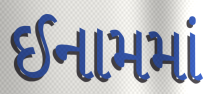
ઈનામમાં